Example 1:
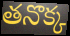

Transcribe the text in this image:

తనొక్క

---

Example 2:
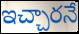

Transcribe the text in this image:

ఇచ్చారనే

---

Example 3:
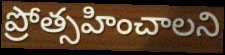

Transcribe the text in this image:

ప్రోత్సహించాలని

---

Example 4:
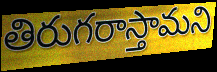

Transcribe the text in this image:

తిరుగరాస్తామని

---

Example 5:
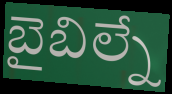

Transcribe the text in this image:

బైబిల్నే